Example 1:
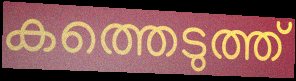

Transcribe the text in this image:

കത്തെടുത്ത്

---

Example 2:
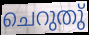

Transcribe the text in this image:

ചെറുതു്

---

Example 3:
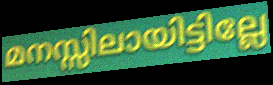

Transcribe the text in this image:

മനസ്സിലായിട്ടില്ലേ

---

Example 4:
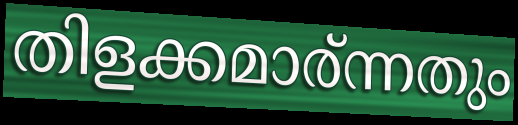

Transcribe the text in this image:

തിളക്കമാര്ന്നതും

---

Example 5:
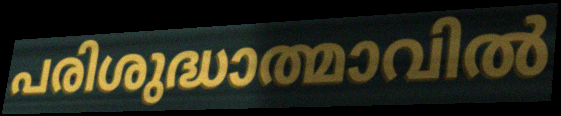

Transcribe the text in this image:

പരിശുദ്ധാത്മാവിൽ